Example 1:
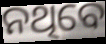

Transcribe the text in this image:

ନଥିବେ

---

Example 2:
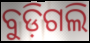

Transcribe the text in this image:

ବୁଡ଼ିଗଲି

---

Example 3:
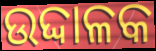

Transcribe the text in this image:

ଉଦ୍ଦାଳକ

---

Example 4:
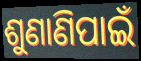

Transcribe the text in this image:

ଶୁଣାଣିପାଇଁ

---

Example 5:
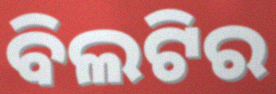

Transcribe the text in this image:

ବିଲଟିର